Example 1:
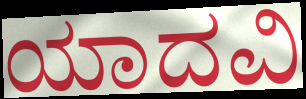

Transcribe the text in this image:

ಯಾದವಿ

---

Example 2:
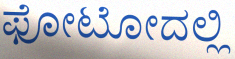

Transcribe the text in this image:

ಫೋಟೋದಲ್ಲಿ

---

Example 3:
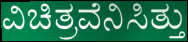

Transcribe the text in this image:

ವಿಚಿತ್ರವೆನಿಸಿತ್ತು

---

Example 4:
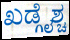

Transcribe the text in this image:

ಖಡ್ಗೈಶ್ಚ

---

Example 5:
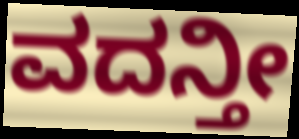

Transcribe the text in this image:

ವದನ್ತೀ